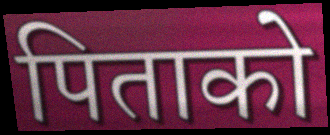
पिताको